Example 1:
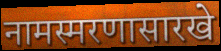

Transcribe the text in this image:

नामस्मरणासारखे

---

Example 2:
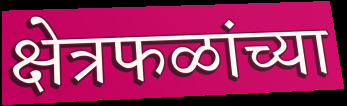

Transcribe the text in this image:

क्षेत्रफळांच्या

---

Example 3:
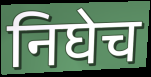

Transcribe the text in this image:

निघेच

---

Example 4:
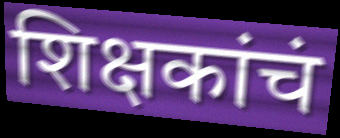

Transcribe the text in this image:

शिक्षकांचं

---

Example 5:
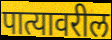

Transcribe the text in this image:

पात्यावरील